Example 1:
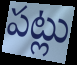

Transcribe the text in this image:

పట్లు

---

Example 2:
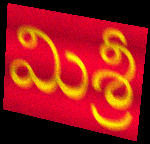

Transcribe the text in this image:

మిశ్రీ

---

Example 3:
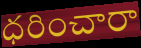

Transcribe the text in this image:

ధరించారా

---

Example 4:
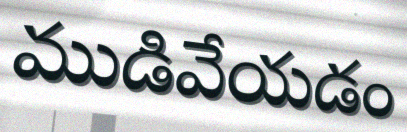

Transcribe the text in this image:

ముడివేయడం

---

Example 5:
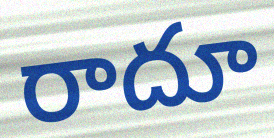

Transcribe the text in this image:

రాదూ